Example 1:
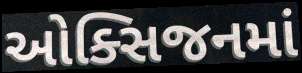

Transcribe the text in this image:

ઓક્સિજનમાં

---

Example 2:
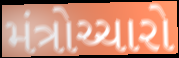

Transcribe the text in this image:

મંત્રોચ્ચારો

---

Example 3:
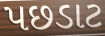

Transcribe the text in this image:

પછડાટ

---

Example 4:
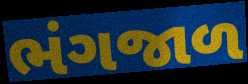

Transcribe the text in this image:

ભંગજાળ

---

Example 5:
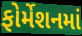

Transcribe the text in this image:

ફોર્મેશનમાં